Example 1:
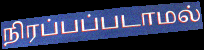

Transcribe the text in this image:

நிரப்பப்படாமல்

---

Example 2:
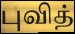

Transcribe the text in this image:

புவித்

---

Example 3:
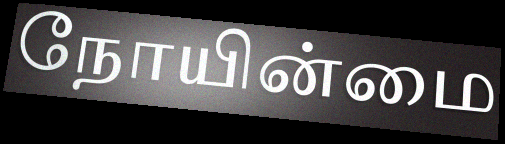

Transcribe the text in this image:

நோயின்மை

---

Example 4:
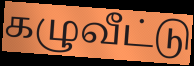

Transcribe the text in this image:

கழுவீட்டு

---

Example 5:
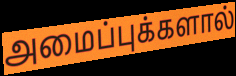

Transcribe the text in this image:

அமைப்புக்களால்